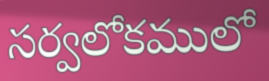
సర్వలోకములో